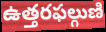
ఉత్తరఫల్గుణి